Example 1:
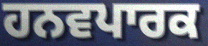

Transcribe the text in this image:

ਹਨਵਪਾਰਕ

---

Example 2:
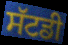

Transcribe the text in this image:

ਸੱਟਡੀ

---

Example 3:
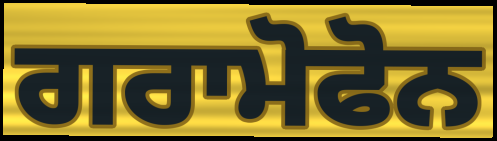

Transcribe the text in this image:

ਗਰਾਮੋਫੋਨ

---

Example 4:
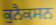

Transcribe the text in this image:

ਕੁਨੈਕਸਨ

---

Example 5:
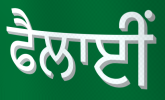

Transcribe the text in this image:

ਫੈਲਾਈਂ